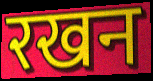
रखन